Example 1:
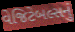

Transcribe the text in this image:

વેજિટેબલ્સનું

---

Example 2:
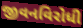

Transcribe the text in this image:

જીવનવિરોધી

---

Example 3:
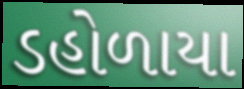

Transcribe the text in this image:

ડહોળાયા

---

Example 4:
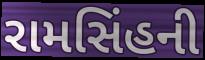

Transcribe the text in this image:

રામસિંહની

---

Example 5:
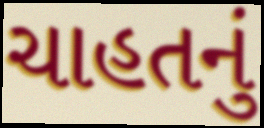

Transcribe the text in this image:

ચાહતનું